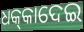
ଧକ୍‌କାଦେଇ